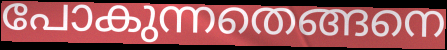
പോകുന്നതെങ്ങനെ